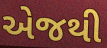
એજથી